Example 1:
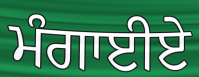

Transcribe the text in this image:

ਮੰਗਾਈਏ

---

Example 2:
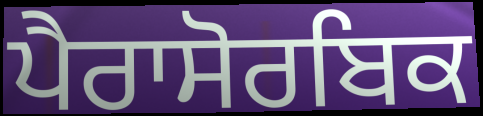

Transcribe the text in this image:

ਪੈਰਾਸੋਰਬਿਕ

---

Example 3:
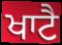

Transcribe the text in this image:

ਖਾਟੈ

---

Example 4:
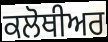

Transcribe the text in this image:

ਕਲੋਥੀਅਰ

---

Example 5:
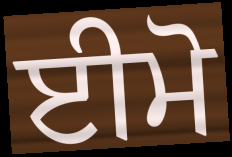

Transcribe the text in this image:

ਈਮੋ